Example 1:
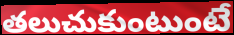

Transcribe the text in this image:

తలుచుకుంటుంటే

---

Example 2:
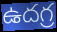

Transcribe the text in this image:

ఉదగ్ర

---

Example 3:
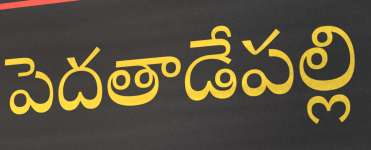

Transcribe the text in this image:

పెదతాడేపల్లి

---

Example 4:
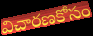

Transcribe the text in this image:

విచారణకోసం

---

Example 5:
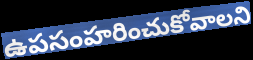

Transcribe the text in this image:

ఉపసంహరించుకోవాలని